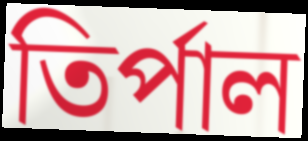
তিৰ্পাল